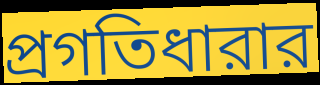
প্রগতিধারার